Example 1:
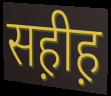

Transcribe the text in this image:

सह़ीह़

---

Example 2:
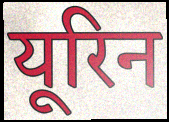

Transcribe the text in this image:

यूरिन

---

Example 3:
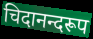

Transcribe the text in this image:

चिदानन्दरूप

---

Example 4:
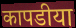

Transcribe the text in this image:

कापडीया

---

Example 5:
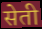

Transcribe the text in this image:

सेती